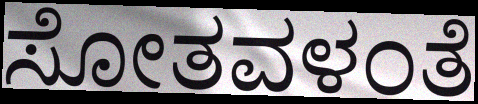
ಸೋತವಳಂತೆ